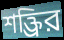
শক্ত্রির